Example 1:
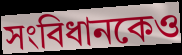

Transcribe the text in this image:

সংবিধানকেও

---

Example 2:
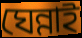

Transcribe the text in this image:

ঘেন্নাই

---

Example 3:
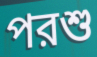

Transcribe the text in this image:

পরশু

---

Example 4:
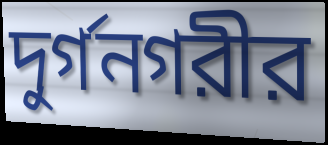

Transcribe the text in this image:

দুর্গনগরীর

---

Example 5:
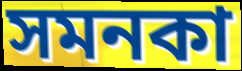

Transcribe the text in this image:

সমনকা